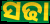
ସଢା